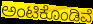
ಅಂಟಿಕೊಂಡಿವೆ